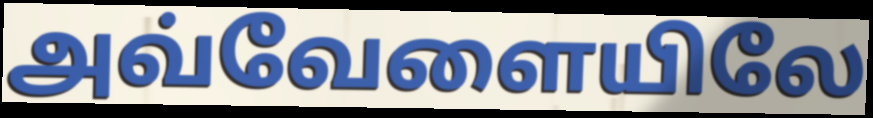
அவ்வேளையிலே